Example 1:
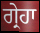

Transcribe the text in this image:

ਗ੍ਰੇਹਾ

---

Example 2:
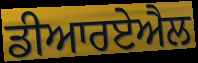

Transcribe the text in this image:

ਡੀਆਰਏਐਲ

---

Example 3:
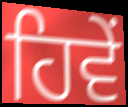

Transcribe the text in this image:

ਹਿਵੇਂ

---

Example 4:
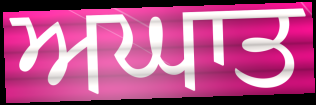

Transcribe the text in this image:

ਅਘਾਤ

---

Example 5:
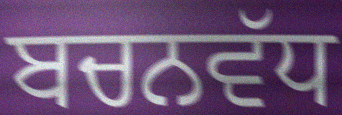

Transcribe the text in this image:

ਬਚਨਵੱਧ